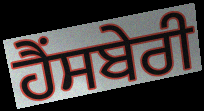
ਹੈਂਸਬੇਰੀ